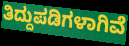
ತಿದ್ದುಪಡಿಗಳಾಗಿವೆ